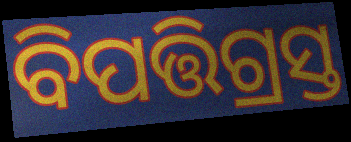
ବିପତ୍ତିଗ୍ରସ୍ତ